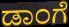
ಡಾಂಗೆ